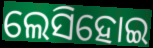
ଲେସିହୋଇ